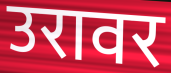
उरावर